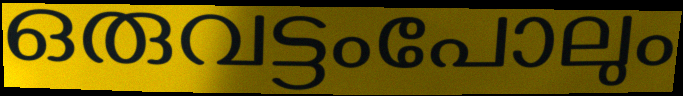
ഒരുവട്ടംപോലും